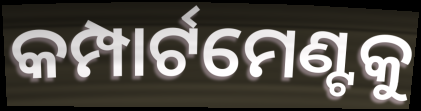
କମ୍ପାର୍ଟମେଣ୍ଟକୁ